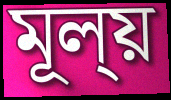
মূল্য়